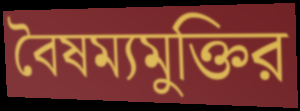
বৈষম্যমুক্তির